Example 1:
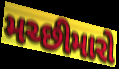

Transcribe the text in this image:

મચ્છીમારો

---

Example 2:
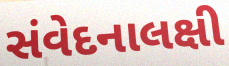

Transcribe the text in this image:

સંવેદનાલક્ષી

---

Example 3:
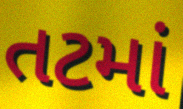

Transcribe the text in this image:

તટમાં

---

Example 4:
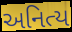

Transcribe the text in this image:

અનિત્ય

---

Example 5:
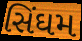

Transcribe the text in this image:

સિંઘમ